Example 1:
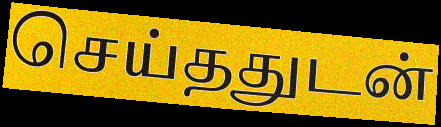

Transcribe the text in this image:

செய்ததுடன்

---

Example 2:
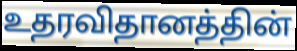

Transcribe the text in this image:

உதரவிதானத்தின்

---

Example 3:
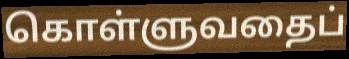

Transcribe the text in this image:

கொள்ளுவதைப்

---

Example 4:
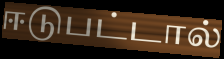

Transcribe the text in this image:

ஈடுபட்டால்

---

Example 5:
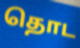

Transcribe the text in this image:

தொட